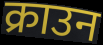
क्राउन